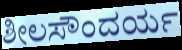
ಶೀಲಸೌಂದರ್ಯ